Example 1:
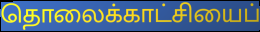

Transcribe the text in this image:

தொலைக்காட்சியைப்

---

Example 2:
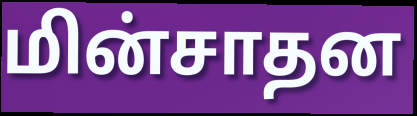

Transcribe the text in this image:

மின்சாதன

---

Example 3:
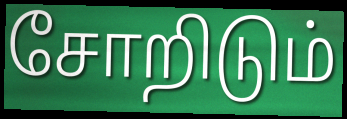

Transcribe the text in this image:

சோறிடும்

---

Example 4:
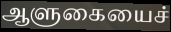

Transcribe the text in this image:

ஆளுகையைச்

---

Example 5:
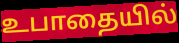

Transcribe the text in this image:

உபாதையில்